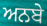
ਅਨਬੇ